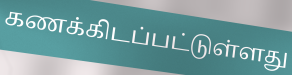
கணக்கிடப்பட்டுள்ளது